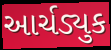
આર્ચડ્યુક